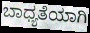
ಬಾಧ್ಯತೆಯಾಗಿ